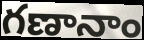
గణానాం